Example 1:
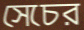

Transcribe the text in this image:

সেচের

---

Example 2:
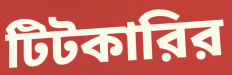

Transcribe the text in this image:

টিটকারির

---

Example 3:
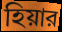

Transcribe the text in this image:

হিয়ার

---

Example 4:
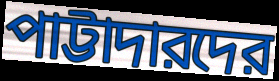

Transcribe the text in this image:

পাট্টাদারদের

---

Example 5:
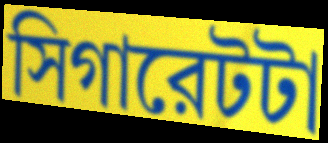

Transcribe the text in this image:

সিগারেটটা